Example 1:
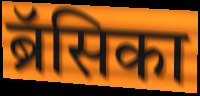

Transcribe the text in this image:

ब्रॅसिका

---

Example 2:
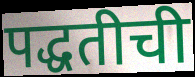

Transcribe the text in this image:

पद्धतीची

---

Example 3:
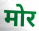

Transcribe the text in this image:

मोर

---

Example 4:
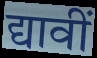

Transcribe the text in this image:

द्यावीं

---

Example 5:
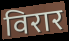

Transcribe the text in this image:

विरार